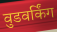
वुडवर्किंग